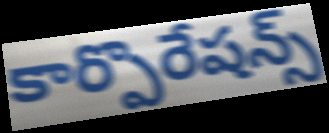
కార్పొరేషన్స్